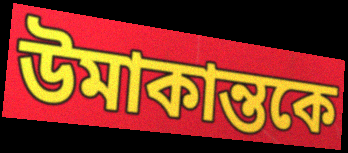
উমাকান্তকে